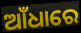
ଆଁଧାରେ